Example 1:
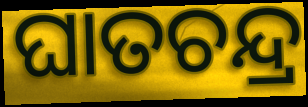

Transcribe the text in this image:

ଘାତଚନ୍ଦ୍ର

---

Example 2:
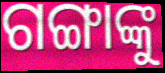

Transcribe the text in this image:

ଗଙ୍ଗାଙ୍କୁ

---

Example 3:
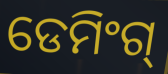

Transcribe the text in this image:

ଡେମିଂଗ୍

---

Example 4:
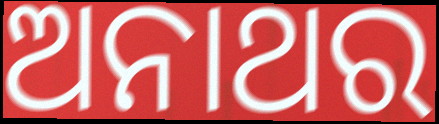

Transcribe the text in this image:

ଅନାଥର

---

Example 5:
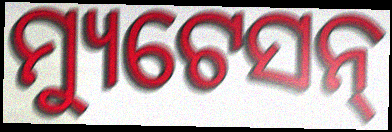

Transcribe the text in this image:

ମ୍ୟୁଟେସନ୍